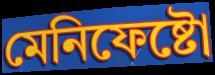
মেনিফেষ্টো